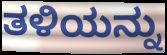
ತಳಿಯನ್ನು